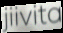
jiivita